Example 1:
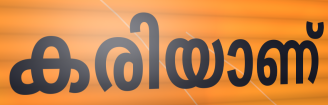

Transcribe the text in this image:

കരിയാണ്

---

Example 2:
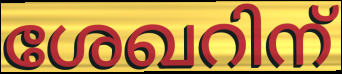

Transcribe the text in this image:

ശേഖറിന്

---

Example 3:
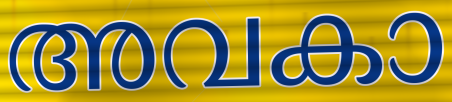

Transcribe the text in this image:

അവകാ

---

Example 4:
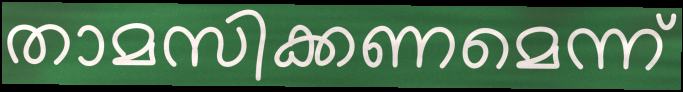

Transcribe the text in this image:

താമസിക്കണമെന്ന്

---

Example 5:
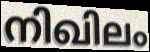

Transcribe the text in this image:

നിഖിലം